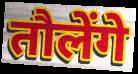
तौलेंगे